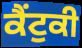
ਕੈਂਟੁਕੀ